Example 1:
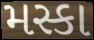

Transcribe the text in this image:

મસ્કા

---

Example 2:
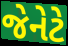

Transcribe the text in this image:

જેનેટે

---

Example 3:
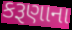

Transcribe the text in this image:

કરૂણાના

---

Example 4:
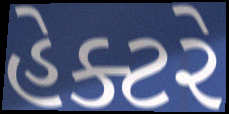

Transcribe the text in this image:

હેક્ટરે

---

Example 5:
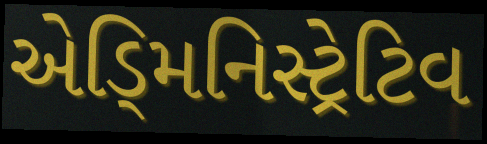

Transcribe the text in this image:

એડ્મિનિસ્ટ્રેટિવ